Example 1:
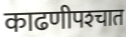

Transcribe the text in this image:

काढणीपश्‍चात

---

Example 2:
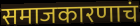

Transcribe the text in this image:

समाजकारणाचं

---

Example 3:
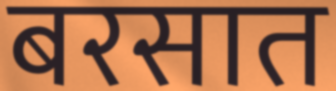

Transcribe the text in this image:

बरसात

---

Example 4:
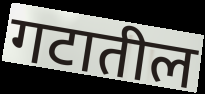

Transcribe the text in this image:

गटातील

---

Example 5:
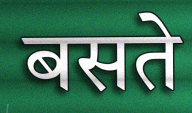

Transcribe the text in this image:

बसते